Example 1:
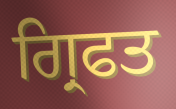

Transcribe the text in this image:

ਗ੍ਰਿਫਤ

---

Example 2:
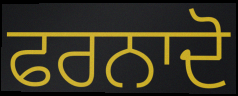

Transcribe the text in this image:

ਫਰਨਾਦੋ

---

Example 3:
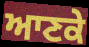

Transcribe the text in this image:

ਆਣਕੇ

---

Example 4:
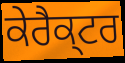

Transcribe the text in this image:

ਕੇਰੈਕ੍ਟਰ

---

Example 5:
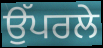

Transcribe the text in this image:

ਉੱਪਰਲੇ